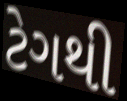
ટેગથી